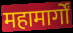
महामार्गों